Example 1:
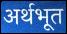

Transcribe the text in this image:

अर्थभूत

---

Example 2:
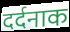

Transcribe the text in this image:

दर्दनाक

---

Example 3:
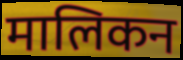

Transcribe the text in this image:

मालिकन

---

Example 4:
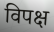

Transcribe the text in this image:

विपक्ष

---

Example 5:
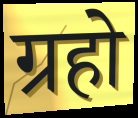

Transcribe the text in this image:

ग्रहो